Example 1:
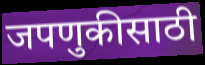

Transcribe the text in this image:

जपणुकीसाठी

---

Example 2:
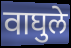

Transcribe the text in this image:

वाघुले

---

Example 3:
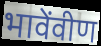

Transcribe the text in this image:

भावेंवीण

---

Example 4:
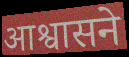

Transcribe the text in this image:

आश्वासने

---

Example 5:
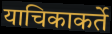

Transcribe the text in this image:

याचिकाकर्ते